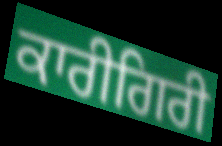
ਕਾਰੀਗਿਰੀ